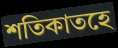
শতিকাতহে